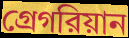
গ্রেগরিয়ান